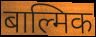
बाल्मिक